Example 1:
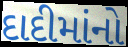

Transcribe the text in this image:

દાદીમાંનો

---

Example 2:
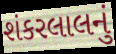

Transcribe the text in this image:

શંકરલાલનું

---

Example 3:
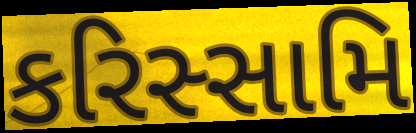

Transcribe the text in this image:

કરિસ્સામિ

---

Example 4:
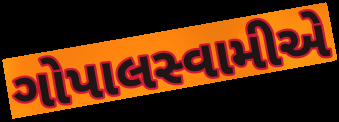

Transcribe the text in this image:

ગોપાલસ્વામીએ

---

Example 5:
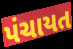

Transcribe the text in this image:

પંચાયત